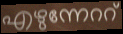
എഴുന്നേററ്